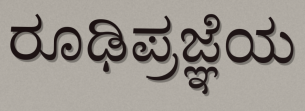
ರೂಢಿಪ್ರಜ್ಞೆಯ